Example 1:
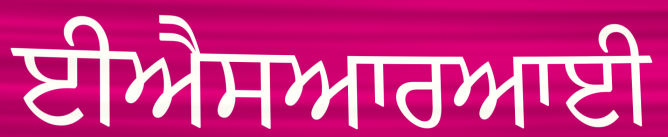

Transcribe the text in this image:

ਈਐਸਆਰਆਈ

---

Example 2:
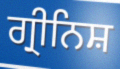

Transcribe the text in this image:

ਗ੍ਰੀਨਿਸ਼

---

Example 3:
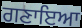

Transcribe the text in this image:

ਗਣਾਇਆ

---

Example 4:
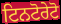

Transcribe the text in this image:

ਟਿਨਟੋਰੇਟੋ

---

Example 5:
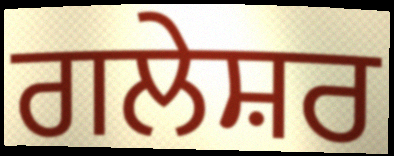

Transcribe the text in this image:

ਗਲੇਸ਼ਰ